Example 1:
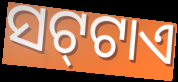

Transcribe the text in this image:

ସଟ୍‍ଟାଏ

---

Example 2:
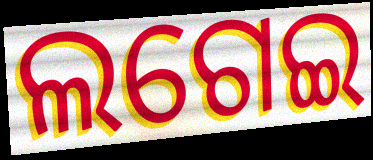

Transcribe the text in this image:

ଲଗେଇ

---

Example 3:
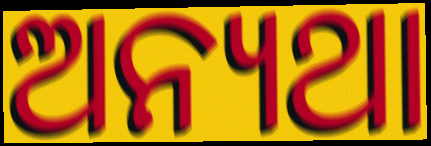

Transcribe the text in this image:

ଅନ୍ୟଥା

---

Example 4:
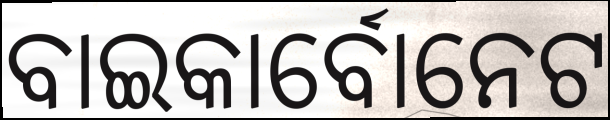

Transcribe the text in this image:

ବାଇକାର୍ବୋନେଟ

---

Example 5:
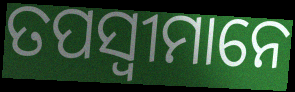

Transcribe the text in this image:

ତପସ୍ୱୀମାନେ